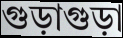
গুড়াগুড়া